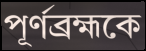
পূর্ণব্রহ্মকে